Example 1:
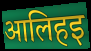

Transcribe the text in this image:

आलिहइ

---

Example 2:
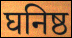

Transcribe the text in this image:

घनिष्ठ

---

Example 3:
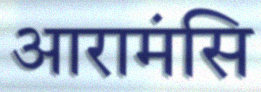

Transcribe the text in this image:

आरामंसि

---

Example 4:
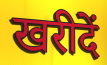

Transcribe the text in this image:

खरीदें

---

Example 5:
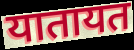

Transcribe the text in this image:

यातायत